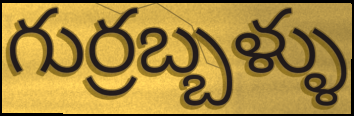
గుర్రబ్బళ్ళు